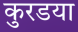
कुरडया